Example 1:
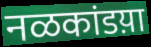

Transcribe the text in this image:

नळकांडय़ा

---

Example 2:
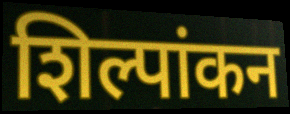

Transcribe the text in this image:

शिल्पांकन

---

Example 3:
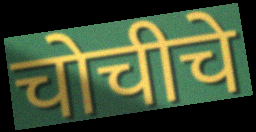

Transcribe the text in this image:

चोचीचे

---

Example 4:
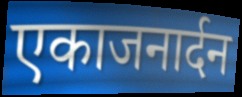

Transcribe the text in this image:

एकाजनार्दन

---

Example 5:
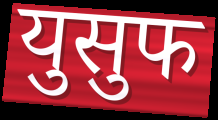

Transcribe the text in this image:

युसुफ